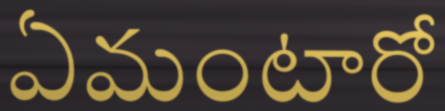
ఏమంటారో